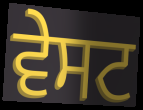
ਵੇਸਟ